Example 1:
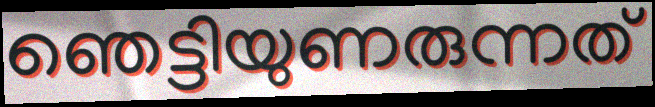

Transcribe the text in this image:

ഞെട്ടിയുണരുന്നത്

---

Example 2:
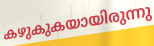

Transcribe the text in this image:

കഴുകുകയായിരുന്നു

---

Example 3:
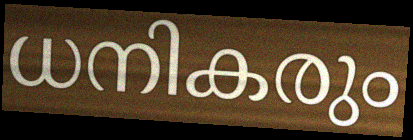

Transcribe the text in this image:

ധനികരും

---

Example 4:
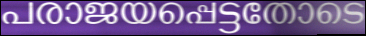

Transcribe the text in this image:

പരാജയപ്പെട്ടതോടെ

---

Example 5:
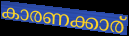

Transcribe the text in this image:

കാരണക്കാര്